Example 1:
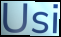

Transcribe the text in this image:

Usi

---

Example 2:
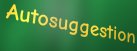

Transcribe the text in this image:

Autosuggestion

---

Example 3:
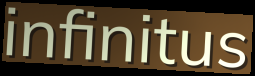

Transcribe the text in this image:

infinitus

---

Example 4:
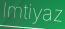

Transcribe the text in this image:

Imtiyaz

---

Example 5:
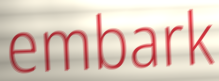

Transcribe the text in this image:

embark